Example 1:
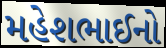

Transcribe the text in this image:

મહેશભાઈનો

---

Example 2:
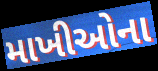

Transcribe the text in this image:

માખીઓના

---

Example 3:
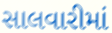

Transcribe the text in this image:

સાલવારીમાં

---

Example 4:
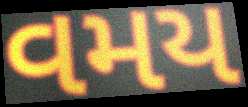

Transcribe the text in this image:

વમય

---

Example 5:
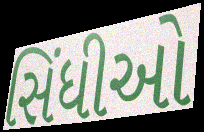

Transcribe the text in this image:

સિંધીઓ